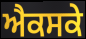
ਐਕਸਕੇ